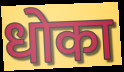
धोका